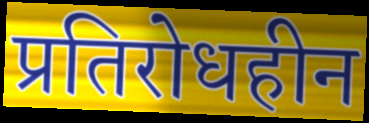
प्रतिरोधहीन